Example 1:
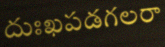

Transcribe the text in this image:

దుఃఖపడగలరా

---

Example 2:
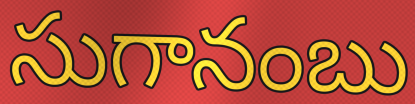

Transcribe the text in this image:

సుగానంబు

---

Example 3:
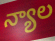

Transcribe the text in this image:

న్యాల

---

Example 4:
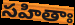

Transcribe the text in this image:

సహితాః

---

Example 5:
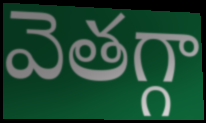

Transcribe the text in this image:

వెతగ్గా